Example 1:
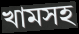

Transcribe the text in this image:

খামসহ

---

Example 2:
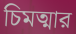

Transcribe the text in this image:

চিমত্মার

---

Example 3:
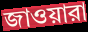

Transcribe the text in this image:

জাওয়ারা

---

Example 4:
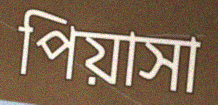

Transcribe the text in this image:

পিয়াসা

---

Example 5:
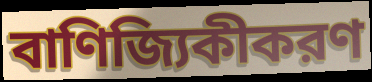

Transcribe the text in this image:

বাণিজ্যিকীকরণ